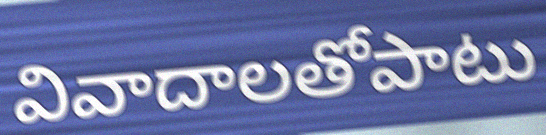
వివాదాలతోపాటు